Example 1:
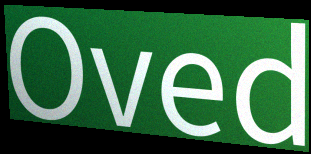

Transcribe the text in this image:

Oved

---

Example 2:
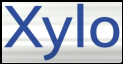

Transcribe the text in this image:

Xylo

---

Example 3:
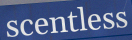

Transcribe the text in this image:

scentless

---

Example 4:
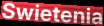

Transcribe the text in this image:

Swietenia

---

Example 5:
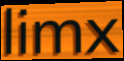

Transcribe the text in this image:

limx